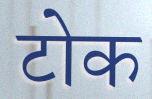
टोक